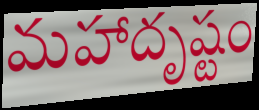
మహాదృష్టం